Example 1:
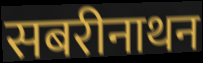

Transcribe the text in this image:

सबरीनाथन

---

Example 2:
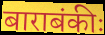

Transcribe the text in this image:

बाराबंकीः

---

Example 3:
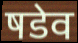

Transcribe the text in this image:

षडेव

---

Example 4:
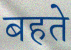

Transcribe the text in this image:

बहते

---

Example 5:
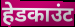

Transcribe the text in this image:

हेडकाउंट